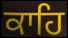
ਕਾਹਿ